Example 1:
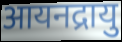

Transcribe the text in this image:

आयनद्रायु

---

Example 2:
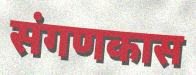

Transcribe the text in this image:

संगणकास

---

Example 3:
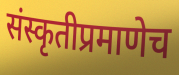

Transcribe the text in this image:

संस्कृतीप्रमाणेच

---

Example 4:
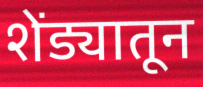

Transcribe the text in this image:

शेंड्यातून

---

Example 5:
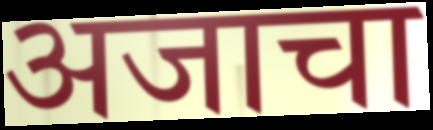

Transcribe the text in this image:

अजाचा